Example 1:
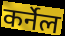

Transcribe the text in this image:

कर्नेल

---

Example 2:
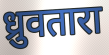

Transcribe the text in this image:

ध्रुवतारा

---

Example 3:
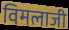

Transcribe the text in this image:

विमलाजी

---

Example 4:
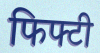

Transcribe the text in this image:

फिफ्टी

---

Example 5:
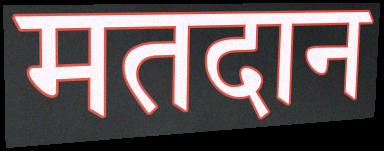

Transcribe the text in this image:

मतदान